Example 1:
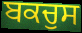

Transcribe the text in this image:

ਬਕਚੁਸ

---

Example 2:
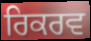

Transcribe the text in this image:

ਰਿਕਰਵ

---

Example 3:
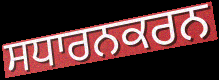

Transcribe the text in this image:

ਸਧਾਰਨਕਰਨ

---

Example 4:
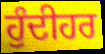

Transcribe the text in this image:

ਹੁੰਦੀਹਰ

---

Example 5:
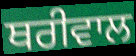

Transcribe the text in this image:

ਥਰੀਵਾਲ